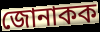
জোনাকক